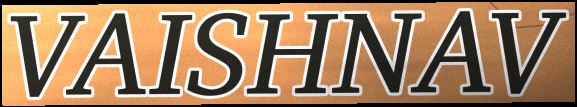
VAISHNAV